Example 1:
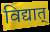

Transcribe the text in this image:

विद्यात्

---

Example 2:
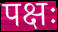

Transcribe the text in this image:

पक्षः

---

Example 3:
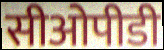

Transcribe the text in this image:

सीओपीडी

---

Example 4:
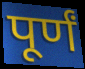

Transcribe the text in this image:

पूर्णं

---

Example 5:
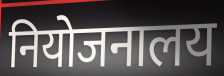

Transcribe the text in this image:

नियोजनालय